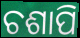
ଚଶାପି